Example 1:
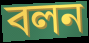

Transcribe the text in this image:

বলন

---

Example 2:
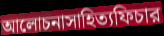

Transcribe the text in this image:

আলোচনাসাহিত্যফিচার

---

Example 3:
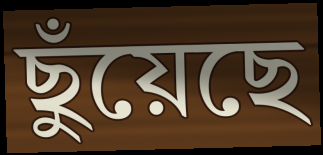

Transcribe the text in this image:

ছুঁয়েছে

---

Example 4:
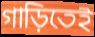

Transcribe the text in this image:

গাড়িতেই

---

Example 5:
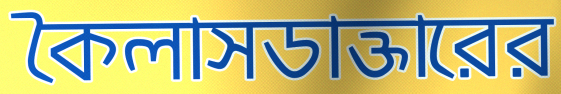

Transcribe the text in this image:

কৈলাসডাক্তারের